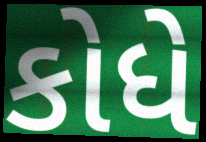
કોધે